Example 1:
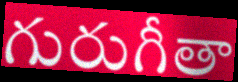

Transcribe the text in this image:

గురుగీతా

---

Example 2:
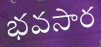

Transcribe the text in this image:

భవసార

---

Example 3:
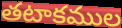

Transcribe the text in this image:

తటాకముల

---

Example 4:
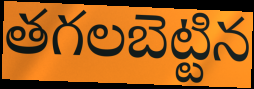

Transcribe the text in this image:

తగలబెట్టిన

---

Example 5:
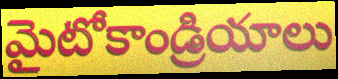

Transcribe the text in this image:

మైటోకాండ్రియాలు